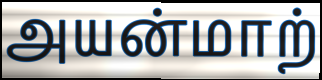
அயன்மாற்